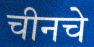
चीनचे